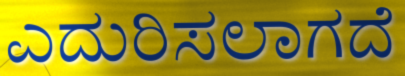
ಎದುರಿಸಲಾಗದೆ